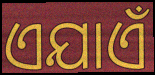
ଏଯାଏଁ